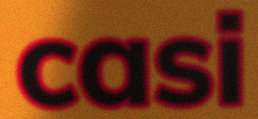
casi